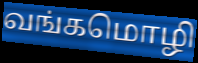
வங்கமொழி